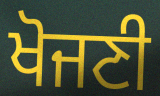
ਖੋਜਣੀ